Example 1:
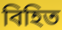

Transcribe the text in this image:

বিহিত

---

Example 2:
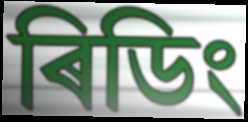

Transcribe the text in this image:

ৰিডিং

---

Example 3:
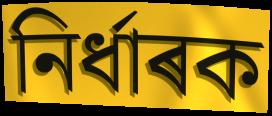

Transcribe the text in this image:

নিৰ্ধাৰক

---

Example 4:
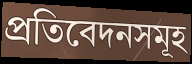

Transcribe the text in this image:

প্ৰতিবেদনসমূহ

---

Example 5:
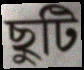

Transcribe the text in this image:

ছুটি